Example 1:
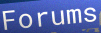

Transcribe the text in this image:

Forums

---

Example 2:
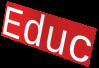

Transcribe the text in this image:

Educ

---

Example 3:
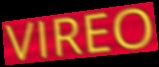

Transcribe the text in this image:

VIREO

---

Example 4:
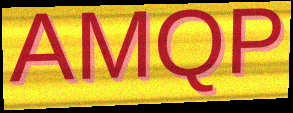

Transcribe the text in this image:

AMQP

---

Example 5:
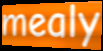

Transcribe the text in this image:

mealy